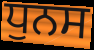
ਧੁਨਸ